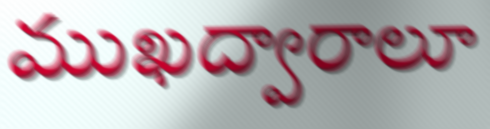
ముఖద్వారాలూ